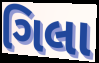
ગિલા